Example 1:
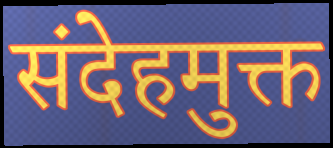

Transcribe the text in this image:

संदेहमुक्त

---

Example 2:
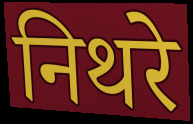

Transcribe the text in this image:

निथरे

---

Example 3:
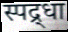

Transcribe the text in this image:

स्पद्र्धा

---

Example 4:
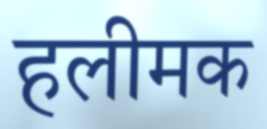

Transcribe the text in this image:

हलीमक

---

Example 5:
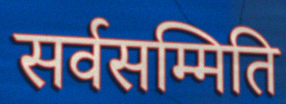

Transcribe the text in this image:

सर्वसम्मिति